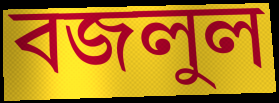
বজলুল